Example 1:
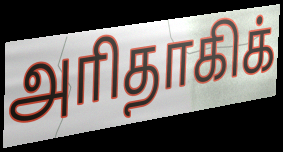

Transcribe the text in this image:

அரிதாகிக்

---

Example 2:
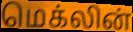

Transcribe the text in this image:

மெக்லின்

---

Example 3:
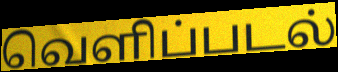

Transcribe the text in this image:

வெளிப்படல்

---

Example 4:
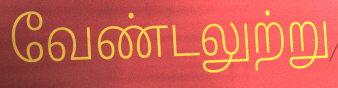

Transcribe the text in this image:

வேண்டலுற்று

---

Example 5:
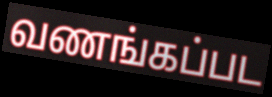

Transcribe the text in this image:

வணங்கப்பட